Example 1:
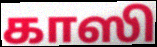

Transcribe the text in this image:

காஸி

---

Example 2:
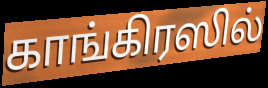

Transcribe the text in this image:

காங்கிரஸில்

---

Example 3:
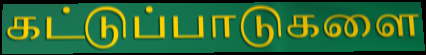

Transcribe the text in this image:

கட்டுப்பாடுகளை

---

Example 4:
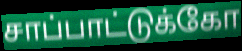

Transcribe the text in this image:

சாப்பாட்டுக்கோ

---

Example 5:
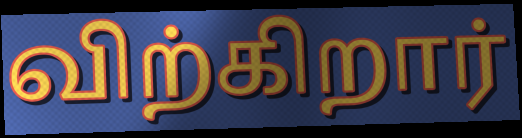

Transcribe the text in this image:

விற்கிறார்